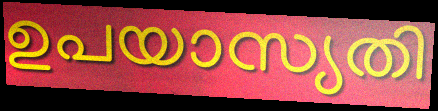
ഉപയാസ്യതി